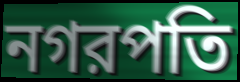
নগরপতি